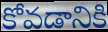
కోవడానికి